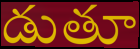
డుతూ